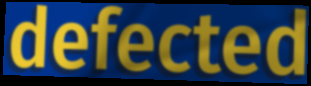
defected